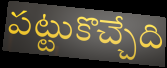
పట్టుకొచ్చేది